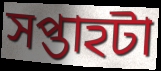
সপ্তাহটা